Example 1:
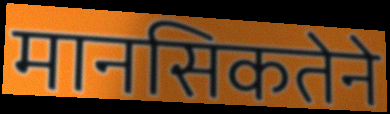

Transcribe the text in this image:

मानसिकतेने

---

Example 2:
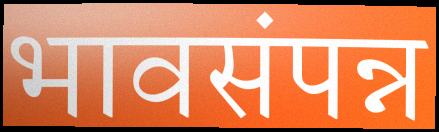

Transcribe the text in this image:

भावसंपन्न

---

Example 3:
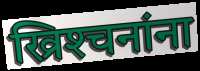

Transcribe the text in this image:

ख्रिश्‍चनांना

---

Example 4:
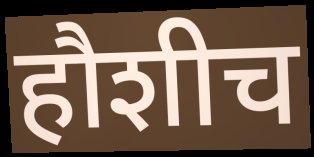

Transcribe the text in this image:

हौशीच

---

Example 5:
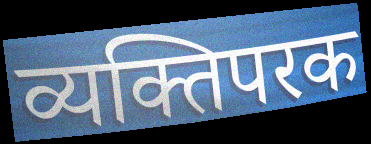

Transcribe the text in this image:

व्यक्तिपरक